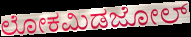
ಲೋಕಮಿಡಜೋಲ್